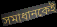
সমাধানকেই